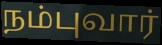
நம்புவார்